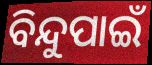
ବିନ୍ଦୁପାଇଁ